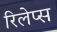
रिलेप्स